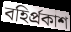
বহিৰ্প্ৰকাশ